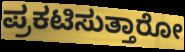
ಪ್ರಕಟಿಸುತ್ತಾರೋ